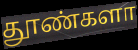
தூண்களா